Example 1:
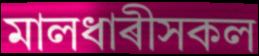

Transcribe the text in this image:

মালধাৰীসকল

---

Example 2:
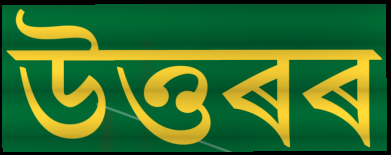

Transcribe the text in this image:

উত্তৰৰ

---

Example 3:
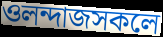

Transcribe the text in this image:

ওলন্দাজসকলে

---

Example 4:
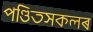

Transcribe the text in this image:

পণ্ডিতসকলৰ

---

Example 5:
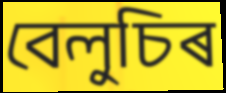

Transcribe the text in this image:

বেলুচিৰ